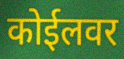
कोईलवर